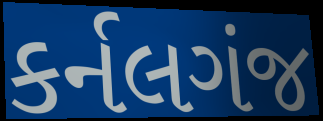
કર્નલગંજ